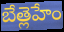
బేత్లెహేం